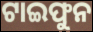
ଟାଇଫୁନ